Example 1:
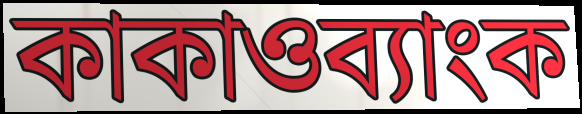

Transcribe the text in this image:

কাকাওব্যাংক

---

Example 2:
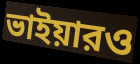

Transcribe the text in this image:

ভাইয়ারও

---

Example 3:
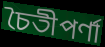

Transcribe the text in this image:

চৈতীপর্ণা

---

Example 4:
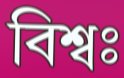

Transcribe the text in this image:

বিশ্বঃ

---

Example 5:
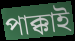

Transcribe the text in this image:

পাক্কাই